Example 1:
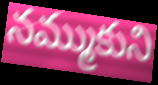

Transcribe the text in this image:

నమ్ముకుని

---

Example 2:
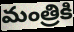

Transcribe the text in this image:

మంత్రికి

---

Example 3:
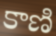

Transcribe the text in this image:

కాణి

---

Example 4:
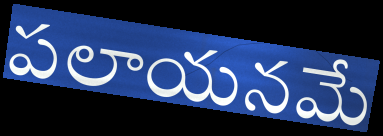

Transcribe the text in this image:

పలాయనమే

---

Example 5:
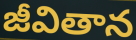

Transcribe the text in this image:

జీవితాన